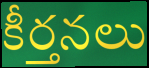
కీర్తనలు